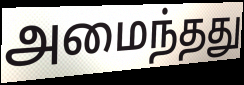
அமைந்தது